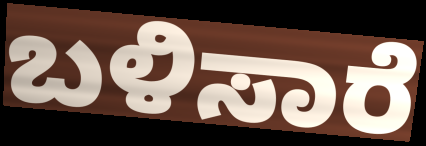
ಬಳಿಸಾರೆ